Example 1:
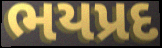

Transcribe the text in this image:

ભયપ્રદ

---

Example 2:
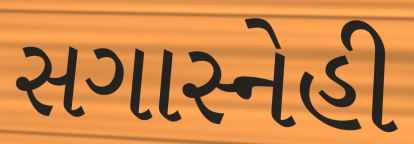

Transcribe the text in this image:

સગાસ્નેહી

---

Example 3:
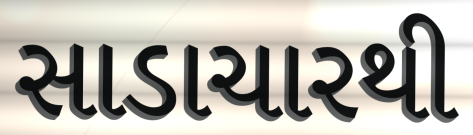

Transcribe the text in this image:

સાડાચારથી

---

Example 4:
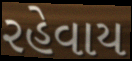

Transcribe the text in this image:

રહેવાય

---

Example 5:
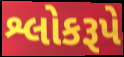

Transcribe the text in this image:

શ્લોકરૂપે